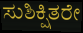
ಸುಶಿಕ್ಷಿತರೇ